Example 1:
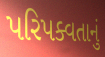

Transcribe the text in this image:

પરિપક્વતાનું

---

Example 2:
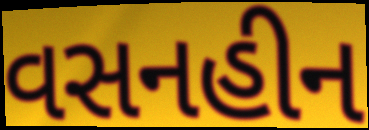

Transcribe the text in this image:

વસનહીન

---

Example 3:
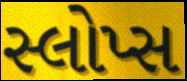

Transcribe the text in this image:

સ્લોપ્સ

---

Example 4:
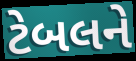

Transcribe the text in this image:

ટેબલને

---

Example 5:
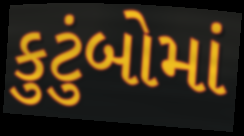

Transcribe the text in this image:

કુટુંબોમાં